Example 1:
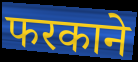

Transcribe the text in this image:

फरकाने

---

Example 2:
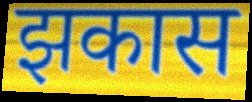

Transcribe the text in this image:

झकास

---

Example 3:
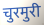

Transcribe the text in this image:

चुरमुरी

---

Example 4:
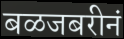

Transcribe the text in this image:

बळजबरीनं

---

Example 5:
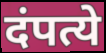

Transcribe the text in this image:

दंपत्ये